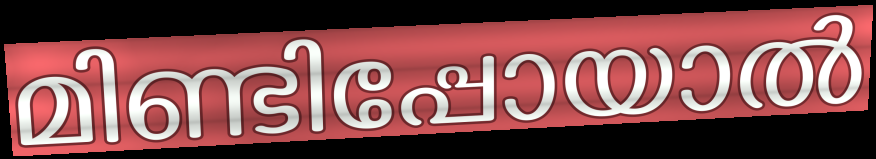
മിണ്ടിപ്പോയാൽ